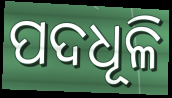
ପଦଧୂଳି